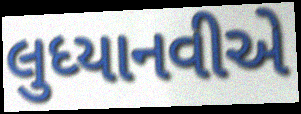
લુધ્યાનવીએ